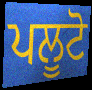
ਪਲੂਟੋ